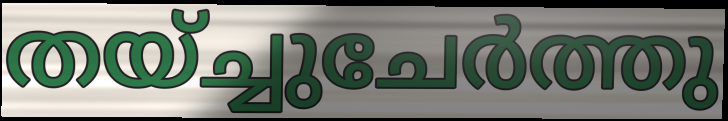
തയ്ച്ചുചേർത്തു